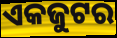
ଏକଜୁଟର